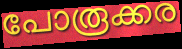
പോരൂക്കര